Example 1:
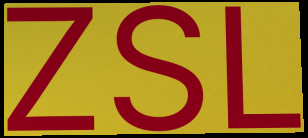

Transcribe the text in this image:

ZSL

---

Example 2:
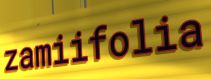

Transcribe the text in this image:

zamiifolia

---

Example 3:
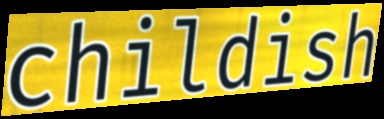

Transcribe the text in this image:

childish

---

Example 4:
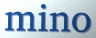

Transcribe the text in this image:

mino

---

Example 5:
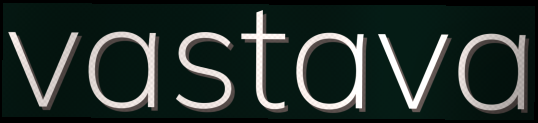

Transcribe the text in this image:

vastava